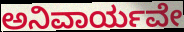
ಅನಿವಾರ್ಯವೇ